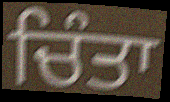
ਚਿੰਤਾ